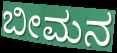
ಬೀಮನ